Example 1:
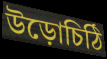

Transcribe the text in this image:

উড়োচিঠি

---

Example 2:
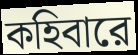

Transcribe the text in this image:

কহিবারে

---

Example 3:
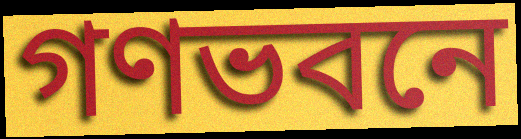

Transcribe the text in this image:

গণভবনে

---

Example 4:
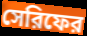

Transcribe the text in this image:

সেরিফের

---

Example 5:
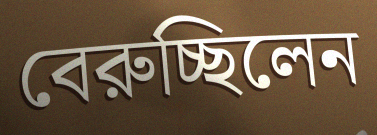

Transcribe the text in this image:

বেরুচ্ছিলেন